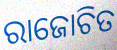
ରାଜୋଚିତ